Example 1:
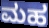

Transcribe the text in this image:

ಮಹ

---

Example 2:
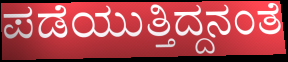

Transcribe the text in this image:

ಪಡೆಯುತ್ತಿದ್ದನಂತೆ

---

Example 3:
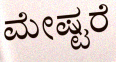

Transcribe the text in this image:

ಮೇಷ್ಟರೆ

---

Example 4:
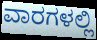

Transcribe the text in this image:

ವಾರಗಳಲ್ಲಿ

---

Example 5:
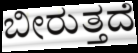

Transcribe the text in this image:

ಬೀರುತ್ತದೆ